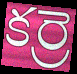
కర్రె